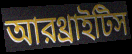
আরথ্রাইটিস